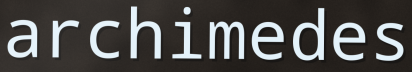
archimedes